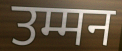
उम्मन